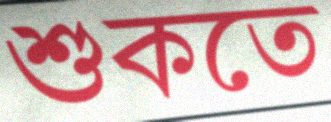
শুকতে